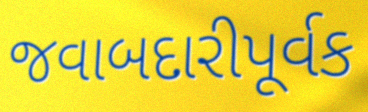
જવાબદારીપૂર્વક